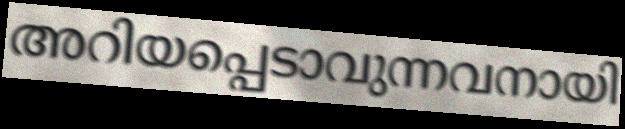
അറിയപ്പെടാവുന്നവനായി